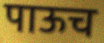
पाऊच